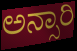
ಅನ್ಸಾರಿ